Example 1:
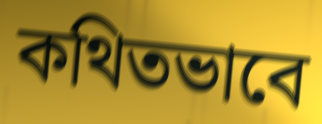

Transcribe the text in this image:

কথিতভাবে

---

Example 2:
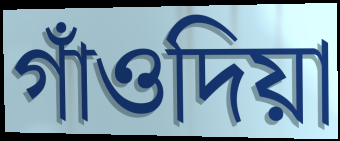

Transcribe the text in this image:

গাঁওদিয়া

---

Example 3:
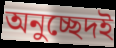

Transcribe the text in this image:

অনুচ্ছেদই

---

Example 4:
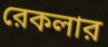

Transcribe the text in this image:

রেকলার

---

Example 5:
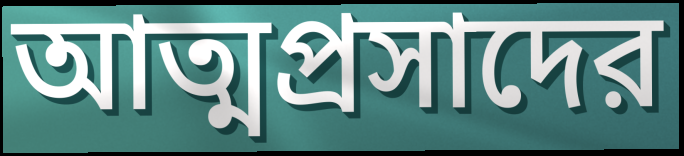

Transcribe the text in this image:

আত্মপ্রসাদের